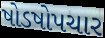
ષોડષોપચાર